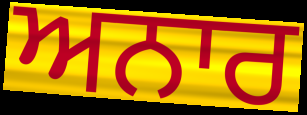
ਅਨਾਰ